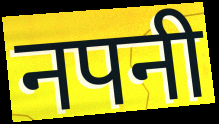
नपनी